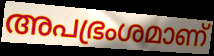
അപഭ്രംശമാണ്